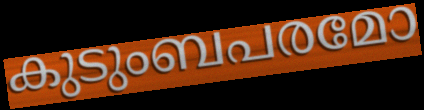
കുടുംബപരമോ